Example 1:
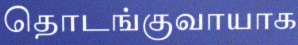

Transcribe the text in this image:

தொடங்குவாயாக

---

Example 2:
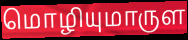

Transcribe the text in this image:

மொழியுமாருள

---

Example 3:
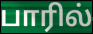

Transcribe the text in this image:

பாரில்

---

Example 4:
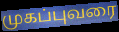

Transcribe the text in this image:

முகப்புவரை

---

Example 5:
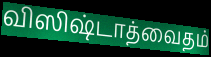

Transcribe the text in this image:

விஸிஷ்டாத்வைதம்